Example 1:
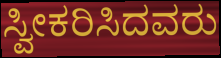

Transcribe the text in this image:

ಸ್ವೀಕರಿಸಿದವರು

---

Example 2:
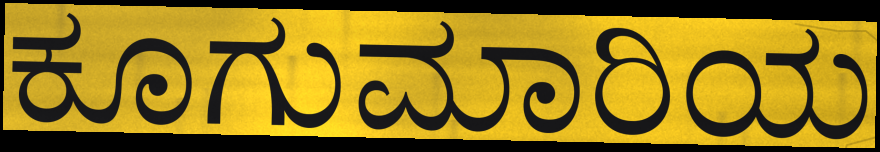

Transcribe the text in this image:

ಕೂಗುಮಾರಿಯ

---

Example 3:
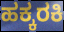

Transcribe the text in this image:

ಹಕ್ಕರಕಿ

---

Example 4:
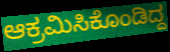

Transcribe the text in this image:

ಆಕ್ರಮಿಸಿಕೊಂಡಿದ್ದ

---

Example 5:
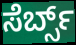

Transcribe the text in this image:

ಸೆರ್ಬ್ಸ್